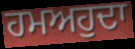
ਹਮਅਹੁਦਾ